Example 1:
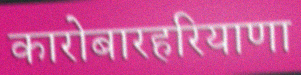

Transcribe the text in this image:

कारोबारहरियाणा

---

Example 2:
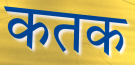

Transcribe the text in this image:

कतक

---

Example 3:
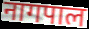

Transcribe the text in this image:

नागपाल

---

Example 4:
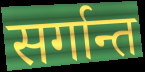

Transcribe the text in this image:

सर्गान्त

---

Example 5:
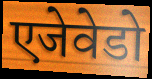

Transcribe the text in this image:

एजेवेडो